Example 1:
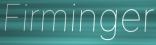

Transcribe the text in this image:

Firminger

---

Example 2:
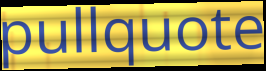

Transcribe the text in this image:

pullquote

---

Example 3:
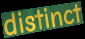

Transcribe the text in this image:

distinct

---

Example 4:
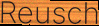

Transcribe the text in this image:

Reusch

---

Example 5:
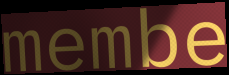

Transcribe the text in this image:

membe